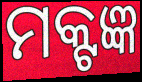
ମକ୍ଟଜ୍ଞ